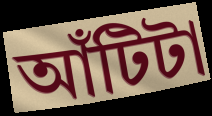
আঁটিটা